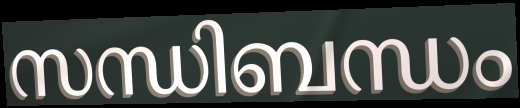
സന്ധിബന്ധം